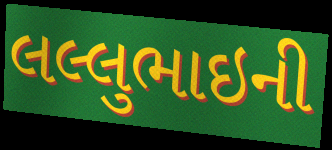
લલ્લુભાઇની